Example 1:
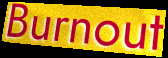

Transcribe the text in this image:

Burnout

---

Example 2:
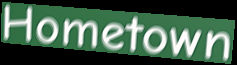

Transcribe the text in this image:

Hometown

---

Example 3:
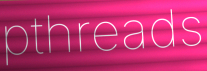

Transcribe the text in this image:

pthreads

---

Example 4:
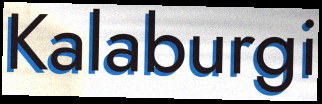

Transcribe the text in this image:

Kalaburgi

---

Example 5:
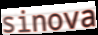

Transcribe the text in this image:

sinova